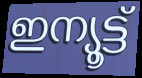
ഇന്യൂട്ട്